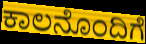
ಕಾಲನೊಂದಿಗೆ